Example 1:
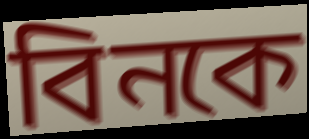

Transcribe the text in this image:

বিনকে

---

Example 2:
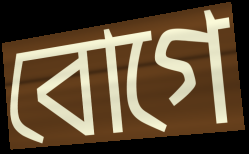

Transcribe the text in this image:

বোগে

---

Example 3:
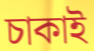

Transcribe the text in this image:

চাকাই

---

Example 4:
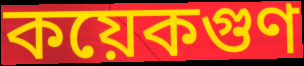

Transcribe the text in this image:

কয়েকগুণ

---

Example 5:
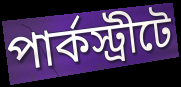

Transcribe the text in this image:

পার্কস্ট্রীটে